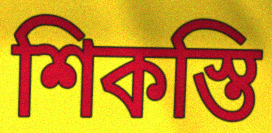
শিকস্তি